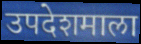
उपदेशमाला